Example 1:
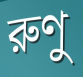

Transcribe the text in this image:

রুণু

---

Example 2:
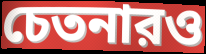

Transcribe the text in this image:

চেতনারও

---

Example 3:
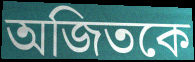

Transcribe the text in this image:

অজিতকে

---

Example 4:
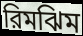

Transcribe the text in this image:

রিমঝিম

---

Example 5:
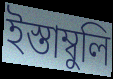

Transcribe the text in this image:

ইস্তাম্বুলি